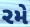
રમે